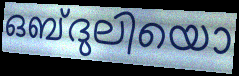
ഒബ്ദുലിയൊ